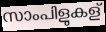
സാംപിളുകള്